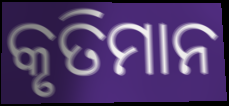
କୃତିମାନ